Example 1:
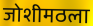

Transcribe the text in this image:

जोशीमठला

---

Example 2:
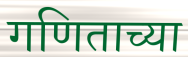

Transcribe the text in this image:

गणिताच्या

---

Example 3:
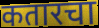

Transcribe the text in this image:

कतारचा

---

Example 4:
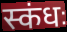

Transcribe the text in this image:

स्कंधः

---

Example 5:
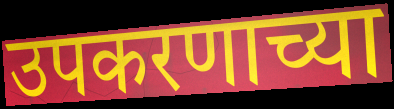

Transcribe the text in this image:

उपकरणाच्या